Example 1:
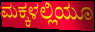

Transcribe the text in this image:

ಮಕ್ಕಳಲ್ಲಿಯೂ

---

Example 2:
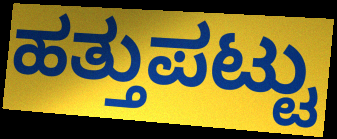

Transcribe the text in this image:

ಹತ್ತುಪಟ್ಟು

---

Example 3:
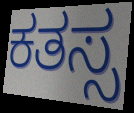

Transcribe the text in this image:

ಕತಸ್ಸ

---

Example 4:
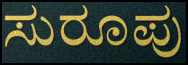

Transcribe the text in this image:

ಸುರೂಪು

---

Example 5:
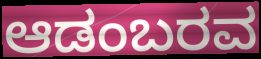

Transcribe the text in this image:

ಆಡಂಬರವ